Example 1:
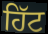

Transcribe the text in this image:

ਹਿੱਟ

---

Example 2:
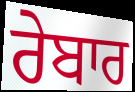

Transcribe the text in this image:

ਰੇਬਾਰ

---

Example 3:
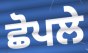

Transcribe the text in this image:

ਛੋਪਲੇ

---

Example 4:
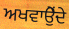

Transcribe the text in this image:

ਅਖਵਾਉੇਂਦੇ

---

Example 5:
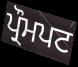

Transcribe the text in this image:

ਪ੍ਰੌਮਪਟ